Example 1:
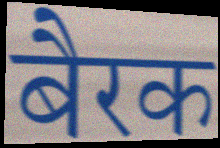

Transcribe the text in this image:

बैरक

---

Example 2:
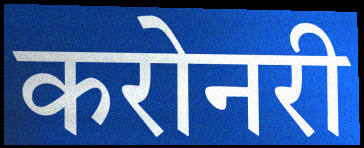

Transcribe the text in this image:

करोनरी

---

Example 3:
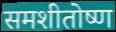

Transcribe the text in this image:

समशीतोष्ण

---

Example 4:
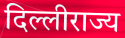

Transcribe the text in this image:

दिल्लीराज्य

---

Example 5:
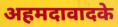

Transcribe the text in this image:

अहमदावादके